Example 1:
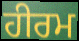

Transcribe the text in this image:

ਹੀਰਮ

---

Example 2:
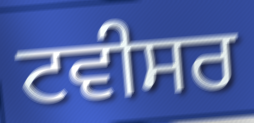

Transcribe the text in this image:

ਟਵੀਸਰ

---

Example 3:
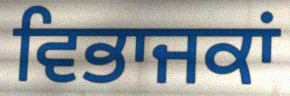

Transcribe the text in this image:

ਵਿਭਾਜਕਾਂ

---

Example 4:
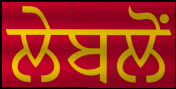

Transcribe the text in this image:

ਲੇਬਲੋਂ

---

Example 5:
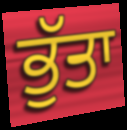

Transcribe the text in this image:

ਭੁੱਤਾ